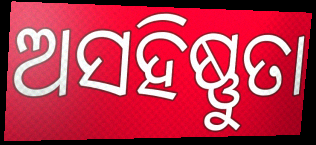
ଅସହିଷ୍ଣୁତା